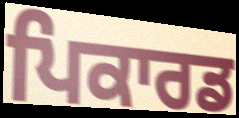
ਪਿਕਾਰਡ